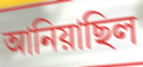
আনিয়াছিল